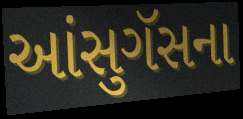
આંસુગૅસના